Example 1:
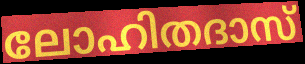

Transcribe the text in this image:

ലോഹിതദാസ്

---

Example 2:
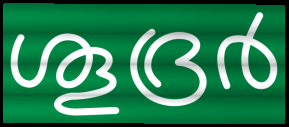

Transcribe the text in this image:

ശൂദ്രർ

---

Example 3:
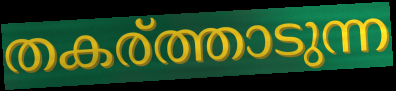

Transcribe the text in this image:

തകര്ത്താടുന്ന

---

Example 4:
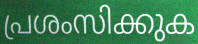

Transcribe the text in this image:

പ്രശംസിക്കുക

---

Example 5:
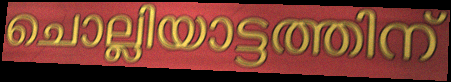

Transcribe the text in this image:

ചൊല്ലിയാട്ടത്തിന്